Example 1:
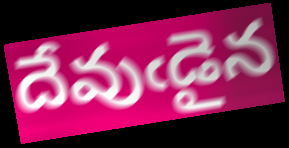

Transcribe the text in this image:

దేవుఁడైన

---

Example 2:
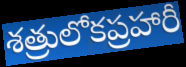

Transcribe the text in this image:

శత్రులోకప్రహారీ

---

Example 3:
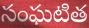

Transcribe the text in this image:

సంఘటిత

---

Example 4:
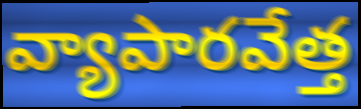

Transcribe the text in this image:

వ్యాపారవేత్త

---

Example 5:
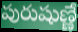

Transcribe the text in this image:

పురుషుణ్ణే